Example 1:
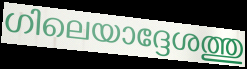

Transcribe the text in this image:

ഗിലെയാദ്ദേശത്തു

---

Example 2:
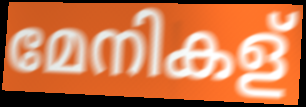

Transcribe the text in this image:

മേനികള്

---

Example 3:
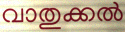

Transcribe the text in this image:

വാതുക്കൽ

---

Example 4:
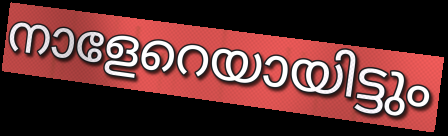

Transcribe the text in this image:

നാളേറെയായിട്ടും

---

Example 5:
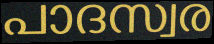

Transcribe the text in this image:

പാദസ്വര